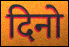
दिनो